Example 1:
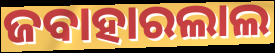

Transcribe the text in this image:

ଜବାହାରଲାଲ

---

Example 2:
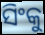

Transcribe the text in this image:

ସିଂକୁ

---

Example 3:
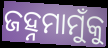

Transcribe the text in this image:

ଜହ୍ନମାମୁଁକୁ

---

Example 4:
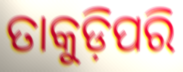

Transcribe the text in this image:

ତାକୁଡ଼ିପରି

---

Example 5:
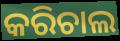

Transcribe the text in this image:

କରିଚାଲ